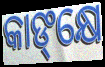
କାଙ୍‌କ୍ଷେ